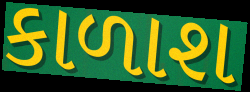
કાળાશ